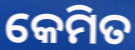
କେମିତ